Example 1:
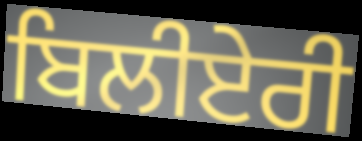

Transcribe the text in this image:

ਬਿਲੀਏਰੀ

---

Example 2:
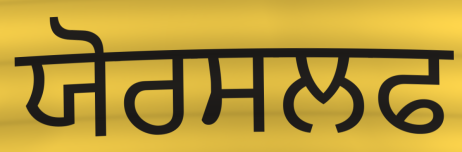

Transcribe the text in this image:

ਯੋਰਸਲਫ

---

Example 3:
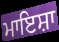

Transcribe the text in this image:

ਮਾਇਸ਼ਾ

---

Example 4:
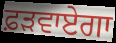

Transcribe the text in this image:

ਫ਼ੜਵਾਏਗਾ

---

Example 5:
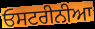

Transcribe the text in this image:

ਓਸਟਰੀਨੀਆ